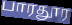
பாரதூர